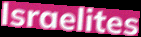
Israelites